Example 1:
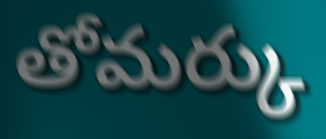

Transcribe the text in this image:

తోమర్కు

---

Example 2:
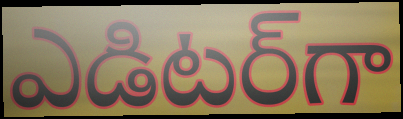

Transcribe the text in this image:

ఎడిటర్‌గా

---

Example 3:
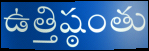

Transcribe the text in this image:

ఉత్తిష్ఠంతు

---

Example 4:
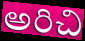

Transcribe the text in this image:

అరిచి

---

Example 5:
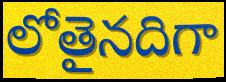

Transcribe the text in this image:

లోతైనదిగా